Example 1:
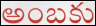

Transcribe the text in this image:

అంబకు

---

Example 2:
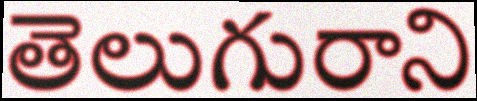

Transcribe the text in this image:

తెలుగురాని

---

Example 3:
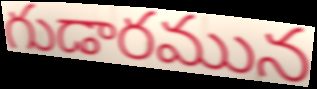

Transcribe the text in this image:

గుడారమున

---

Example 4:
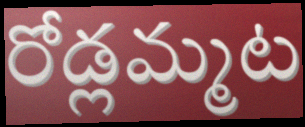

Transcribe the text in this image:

రోడ్లమ్మట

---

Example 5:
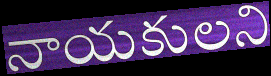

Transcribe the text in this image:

నాయకులని